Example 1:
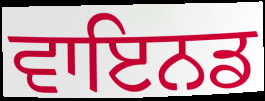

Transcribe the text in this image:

ਵਾਇਨਡ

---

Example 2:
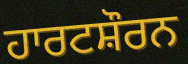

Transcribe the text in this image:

ਹਾਰਟਸ਼ੌਰਨ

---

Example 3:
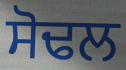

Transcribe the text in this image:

ਸੋਢਲ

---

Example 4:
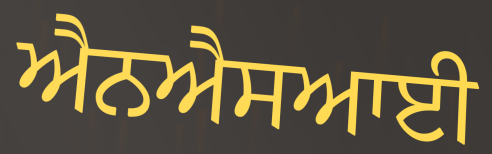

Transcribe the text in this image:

ਐਨਐਸਆਈ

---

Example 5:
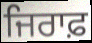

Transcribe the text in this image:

ਜਿਰਾਫ਼